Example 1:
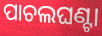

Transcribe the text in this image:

ପାଚଲଘଣ୍ଟା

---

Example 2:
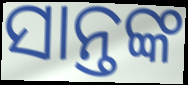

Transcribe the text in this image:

ସାନ୍ତଙ୍କ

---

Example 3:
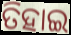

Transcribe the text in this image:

ତିହାଇ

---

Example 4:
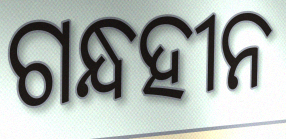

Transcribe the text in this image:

ଗନ୍ଧହୀନ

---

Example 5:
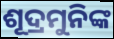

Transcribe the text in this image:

ଶୂଦ୍ରମୁନିଙ୍କ